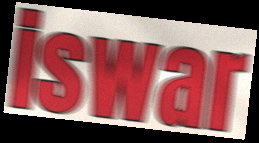
iswar